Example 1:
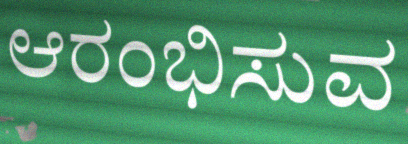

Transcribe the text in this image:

ಆರಂಭಿಸುವ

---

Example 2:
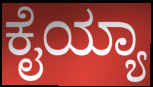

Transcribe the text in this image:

ಕೈಯ್ಯಾ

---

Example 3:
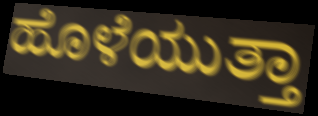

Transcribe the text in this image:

ಹೊಳೆಯುತ್ತಾ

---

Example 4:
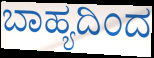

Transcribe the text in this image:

ಬಾಹ್ಯದಿಂದ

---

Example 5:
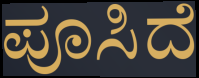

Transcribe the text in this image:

ಪೂಸಿದೆ